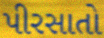
પીરસાતો